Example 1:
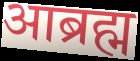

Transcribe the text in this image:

आब्रह्म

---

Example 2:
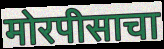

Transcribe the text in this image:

मोरपीसाचा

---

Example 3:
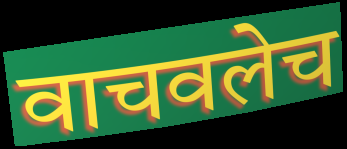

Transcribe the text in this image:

वाचवलेच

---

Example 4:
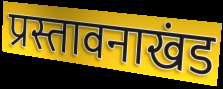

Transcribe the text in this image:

प्रस्तावनाखंड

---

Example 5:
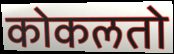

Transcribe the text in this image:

कोकलतो